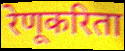
रेणूकरिता